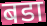
बडा